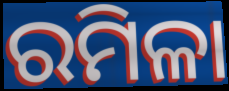
ରମିଳା